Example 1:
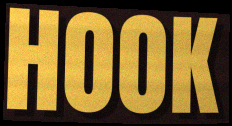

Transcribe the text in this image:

HOOK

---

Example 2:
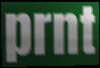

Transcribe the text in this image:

prnt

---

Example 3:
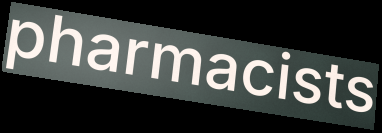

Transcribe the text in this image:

pharmacists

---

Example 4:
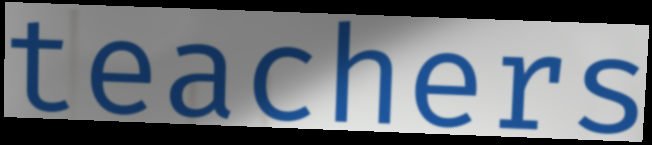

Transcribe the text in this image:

teachers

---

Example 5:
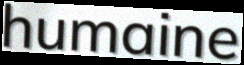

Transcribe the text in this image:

humaine